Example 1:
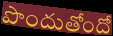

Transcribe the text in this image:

పొందుతోందో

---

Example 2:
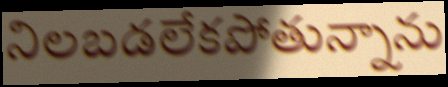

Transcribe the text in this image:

నిలబడలేకపోతున్నాను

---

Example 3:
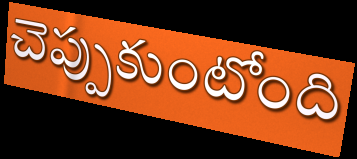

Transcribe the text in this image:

చెప్పుకుంటోంది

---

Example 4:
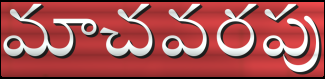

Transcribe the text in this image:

మాచవరపు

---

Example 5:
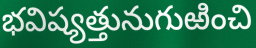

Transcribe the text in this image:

భవిష్యత్తునుగుఱించి